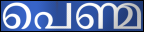
പെണ്മ